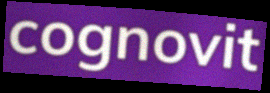
cognovit